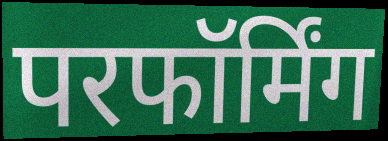
परफॉर्मिंग